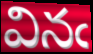
వినఁ